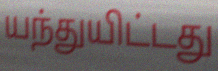
யந்துயிட்டது